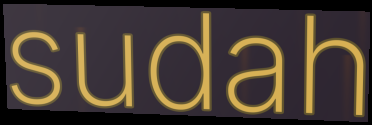
sudah